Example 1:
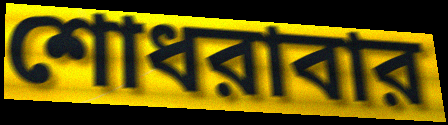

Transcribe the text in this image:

শোধরাবার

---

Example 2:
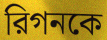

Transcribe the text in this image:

রিগনকে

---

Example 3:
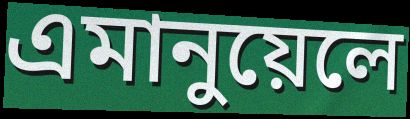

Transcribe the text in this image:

এমানুয়েলে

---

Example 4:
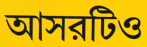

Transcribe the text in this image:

আসরটিও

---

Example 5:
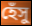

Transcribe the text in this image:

হেঁসু